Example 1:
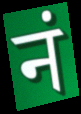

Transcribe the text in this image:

नं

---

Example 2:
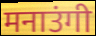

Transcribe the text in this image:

मनाउंगी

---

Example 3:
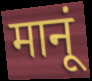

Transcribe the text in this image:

मानूं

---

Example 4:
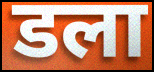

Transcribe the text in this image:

डला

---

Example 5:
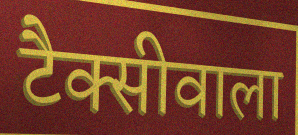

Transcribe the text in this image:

टैक्सीवाला